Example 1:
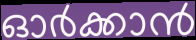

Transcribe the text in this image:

ഓർക്കാൻ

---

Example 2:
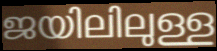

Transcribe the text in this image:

ജയിലിലുള്ള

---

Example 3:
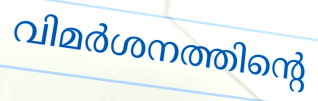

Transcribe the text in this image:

വിമർശനത്തിന്റെ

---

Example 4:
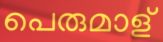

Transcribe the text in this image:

പെരുമാള്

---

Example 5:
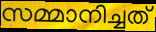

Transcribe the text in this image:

സമ്മാനിച്ചത്